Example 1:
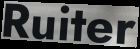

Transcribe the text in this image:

Ruiter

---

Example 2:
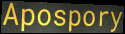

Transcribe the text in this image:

Apospory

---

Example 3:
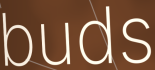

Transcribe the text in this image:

buds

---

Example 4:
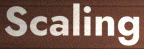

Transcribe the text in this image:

Scaling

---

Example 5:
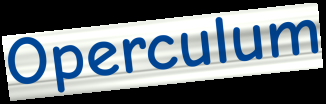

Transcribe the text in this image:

Operculum